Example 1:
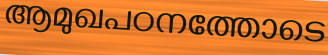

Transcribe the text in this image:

ആമുഖപഠനത്തോടെ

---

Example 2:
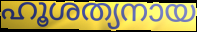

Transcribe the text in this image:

ഹൂശത്യനായ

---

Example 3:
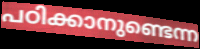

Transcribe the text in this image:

പഠിക്കാനുണ്ടെന്ന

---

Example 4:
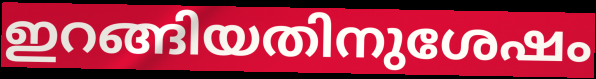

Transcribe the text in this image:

ഇറങ്ങിയതിനുശേഷം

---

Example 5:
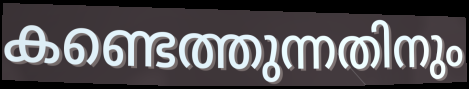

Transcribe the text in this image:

കണ്ടെത്തുന്നതിനും